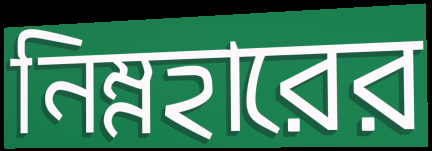
নিম্নহারের